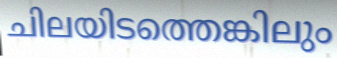
ചിലയിടത്തെങ്കിലും